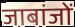
जाबांजों